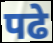
पढे